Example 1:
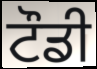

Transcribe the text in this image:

ਟੌਡੀ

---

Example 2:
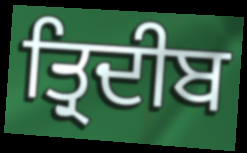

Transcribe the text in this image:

ਤ੍ਰਿਦੀਬ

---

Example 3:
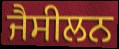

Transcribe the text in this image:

ਜੈਸੀਲਨ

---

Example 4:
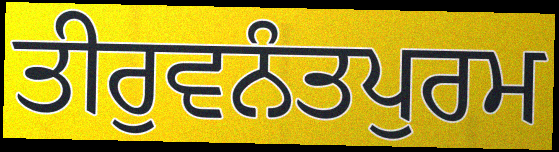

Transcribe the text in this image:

ਤੀਰੁਵਨੰਤਪੁਰਮ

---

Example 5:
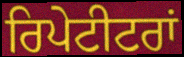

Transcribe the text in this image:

ਰਿਪੇਟੀਟਰਾਂ